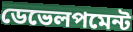
ডেভেলপমেন্ট